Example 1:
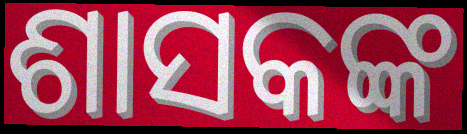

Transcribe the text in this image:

ଶାସକଙ୍କ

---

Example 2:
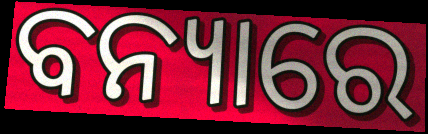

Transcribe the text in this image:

ବନ୍ୟାରେ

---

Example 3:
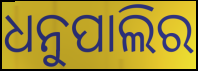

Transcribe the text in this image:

ଧନୁପାଲିର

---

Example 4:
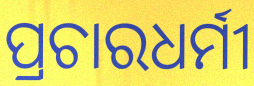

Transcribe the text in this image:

ପ୍ରଚାରଧର୍ମୀ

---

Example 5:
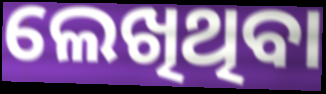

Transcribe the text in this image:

ଲେଖିଥିବା